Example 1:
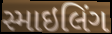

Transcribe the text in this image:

સ્માઇલિંગ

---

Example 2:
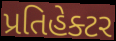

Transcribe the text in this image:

પ્રતિહેક્ટર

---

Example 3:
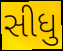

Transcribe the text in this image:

સીધુ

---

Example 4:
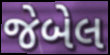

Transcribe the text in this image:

જેબેલ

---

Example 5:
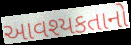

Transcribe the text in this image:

આવશ્યકતાનો